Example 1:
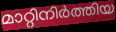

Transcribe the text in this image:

മാറ്റിനിർത്തിയ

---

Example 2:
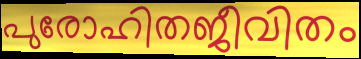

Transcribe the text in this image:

പുരോഹിതജീവിതം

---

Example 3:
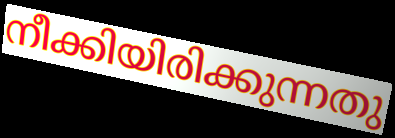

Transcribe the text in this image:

നീക്കിയിരിക്കുന്നതു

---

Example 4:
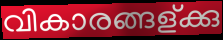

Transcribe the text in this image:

വികാരങ്ങള്ക്കു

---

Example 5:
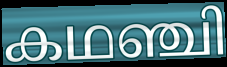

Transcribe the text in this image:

കഥഞ്ചി